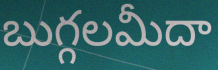
బుగ్గలమీదా